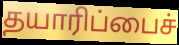
தயாரிப்பைச்